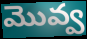
మొవ్వ